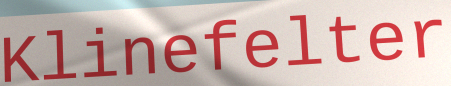
Klinefelter